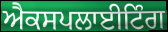
ਐਕਸਪਲਾਈਟਿੰਗ